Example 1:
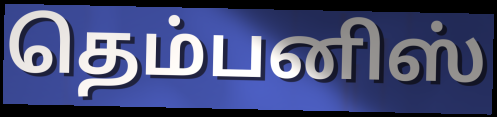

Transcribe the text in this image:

தெம்பனிஸ்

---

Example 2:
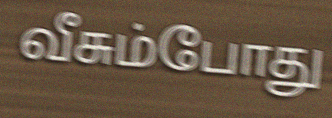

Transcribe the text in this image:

வீசும்போது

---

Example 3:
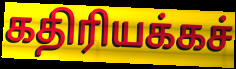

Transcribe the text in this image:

கதிரியக்கச்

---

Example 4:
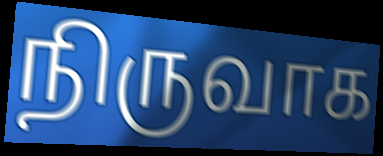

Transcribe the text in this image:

நிருவாக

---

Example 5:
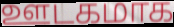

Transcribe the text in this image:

ஊடகமாக